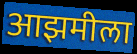
आझमीला